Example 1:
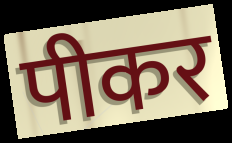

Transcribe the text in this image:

पीकर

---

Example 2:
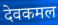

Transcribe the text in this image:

देवकमल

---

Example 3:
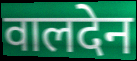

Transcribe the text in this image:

वालदेन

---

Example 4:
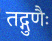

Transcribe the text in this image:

तद्गुणैः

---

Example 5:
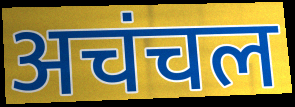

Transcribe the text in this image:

अचंचल